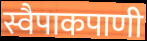
स्वैपाकपाणी